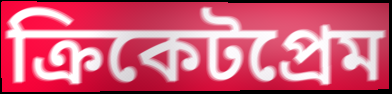
ক্রিকেটপ্রেম